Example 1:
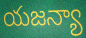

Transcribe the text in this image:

యజన్యా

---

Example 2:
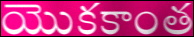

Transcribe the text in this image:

యొకకాంత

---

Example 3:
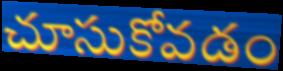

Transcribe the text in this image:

చూసుకోవడం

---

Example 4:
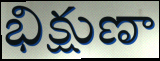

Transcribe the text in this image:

భిక్షుణా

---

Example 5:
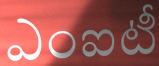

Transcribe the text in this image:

ఎంఐటీ